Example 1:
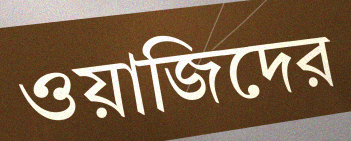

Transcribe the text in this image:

ওয়াজিদের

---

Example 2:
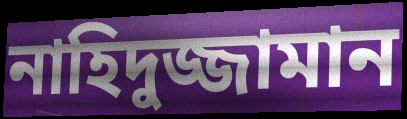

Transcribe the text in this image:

নাহিদুজ্জামান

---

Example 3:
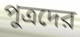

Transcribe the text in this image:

পুত্রদের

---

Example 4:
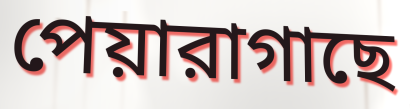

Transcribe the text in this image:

পেয়ারাগাছে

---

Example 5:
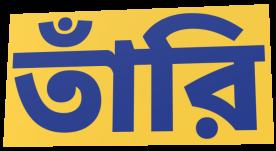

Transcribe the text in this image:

তাঁরি